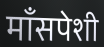
माँसपेशी